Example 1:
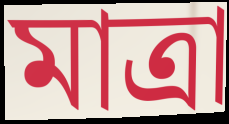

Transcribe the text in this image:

মাত্রা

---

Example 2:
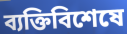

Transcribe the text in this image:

ব্যক্তিবিশেষে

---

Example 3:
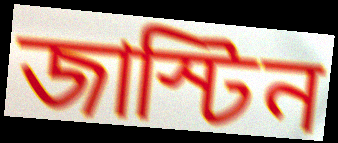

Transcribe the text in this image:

জাস্টিন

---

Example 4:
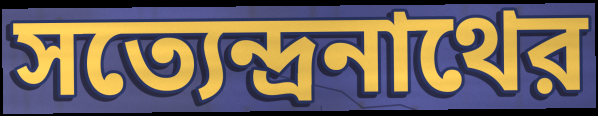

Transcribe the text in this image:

সত্যেন্দ্রনাথের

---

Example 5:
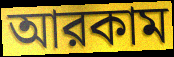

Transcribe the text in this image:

আরকাম